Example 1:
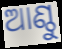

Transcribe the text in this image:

ଆଣ୍ଠୁ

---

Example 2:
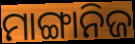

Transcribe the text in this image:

ମାଙ୍ଗାନିଜ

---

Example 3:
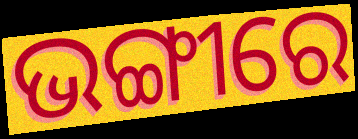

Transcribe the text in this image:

ଭଙ୍ଗୀରେ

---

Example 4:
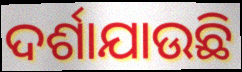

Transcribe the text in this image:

ଦର୍ଶାଯାଉଛି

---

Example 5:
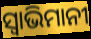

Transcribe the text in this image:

ସ୍ବାଭିମାନୀ